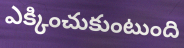
ఎక్కించుకుంటుంది